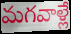
మగవాళ్లే